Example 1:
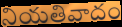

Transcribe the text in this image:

నియతివాదం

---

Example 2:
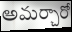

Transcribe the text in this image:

అమర్చారో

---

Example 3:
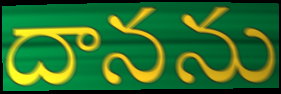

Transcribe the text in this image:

దానను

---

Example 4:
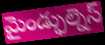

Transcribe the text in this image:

మైండ్ఫుల్నెస్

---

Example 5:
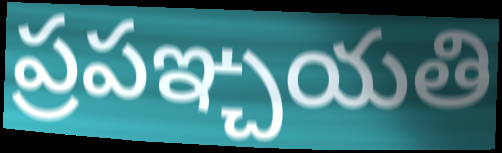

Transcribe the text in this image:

ప్రపఞ్చయతి